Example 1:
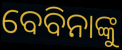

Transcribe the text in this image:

ବେବିନାଙ୍କୁ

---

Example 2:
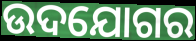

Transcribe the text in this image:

ଉଦଯୋଗର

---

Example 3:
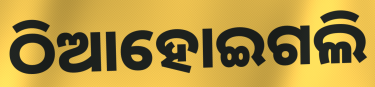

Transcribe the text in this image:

ଠିଆହୋଇଗଲି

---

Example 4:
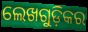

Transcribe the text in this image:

ଲେଖଗୁଡ଼ିକର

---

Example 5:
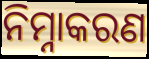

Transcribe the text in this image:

ନିମ୍ନାକରଣ